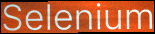
Selenium